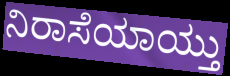
ನಿರಾಸೆಯಾಯ್ತು